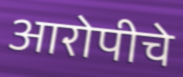
आरोपीचे